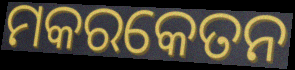
ମକରକେତନ